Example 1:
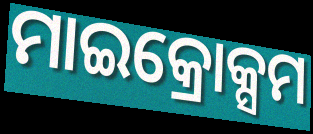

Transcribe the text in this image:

ମାଇକ୍ରୋକ୍ସମ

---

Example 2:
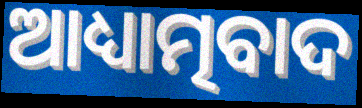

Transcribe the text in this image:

ଆଧ୍ୟାତ୍ମବାଦ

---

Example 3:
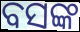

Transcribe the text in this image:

ବସଙ୍କ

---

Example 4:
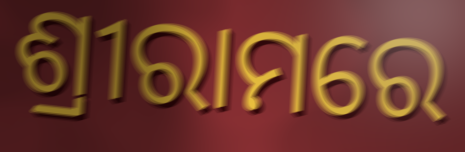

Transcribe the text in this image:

ଶ୍ରୀରାମରେ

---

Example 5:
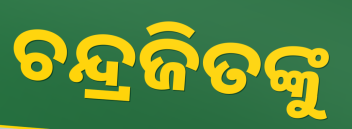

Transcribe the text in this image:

ଚନ୍ଦ୍ରଜିତଙ୍କୁ